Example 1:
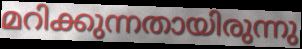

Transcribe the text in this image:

മറിക്കുന്നതായിരുന്നു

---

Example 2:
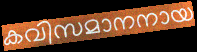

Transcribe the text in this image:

കവിസമാനനായ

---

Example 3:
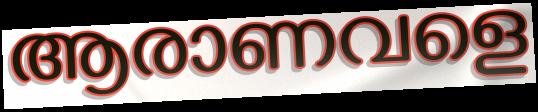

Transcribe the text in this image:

ആരാണവളെ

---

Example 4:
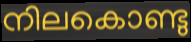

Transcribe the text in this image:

നിലകൊണ്ടു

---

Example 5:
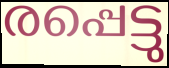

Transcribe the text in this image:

രപ്പെട്ടു